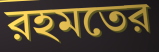
রহমতের